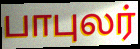
பாபுலர்